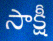
సాక్షీ